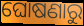
ଘୋଷଣାରୁ